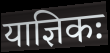
याज्ञिकः